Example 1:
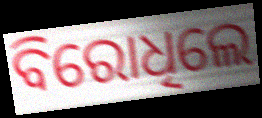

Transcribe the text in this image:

ବିରୋଧିଲେ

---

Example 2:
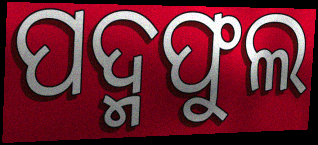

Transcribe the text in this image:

ପଦ୍ମଫୁଲ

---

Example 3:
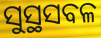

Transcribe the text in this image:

ସୁସ୍ଥସବଳ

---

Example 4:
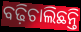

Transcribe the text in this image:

ବଢ଼ିଚାଲିଛନ୍ତି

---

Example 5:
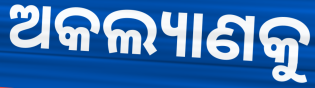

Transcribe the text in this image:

ଅକଲ୍ୟାଣକୁ